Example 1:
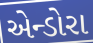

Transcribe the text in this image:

એન્ડોરા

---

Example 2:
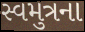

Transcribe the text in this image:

સ્વમુત્રના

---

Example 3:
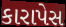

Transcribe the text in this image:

કારાપેસ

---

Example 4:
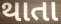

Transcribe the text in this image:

થાતા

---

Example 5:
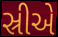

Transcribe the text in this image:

સ્રીએ